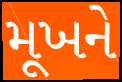
મૂખને